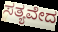
ಸತ್ಯವೇದ